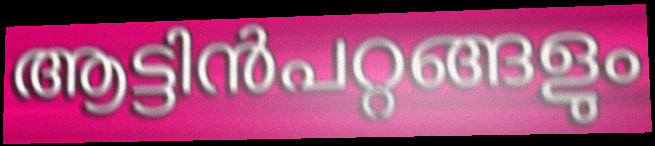
ആട്ടിൻപറ്റങ്ങളും